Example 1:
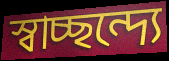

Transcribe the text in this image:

স্বাচ্ছন্দ্যে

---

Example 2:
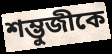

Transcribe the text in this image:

শম্ভুজীকে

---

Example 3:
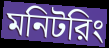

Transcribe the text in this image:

মনিটরিং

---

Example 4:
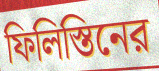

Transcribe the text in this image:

ফিলিস্তিনের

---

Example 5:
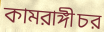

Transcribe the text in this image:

কামরাঙ্গীচর